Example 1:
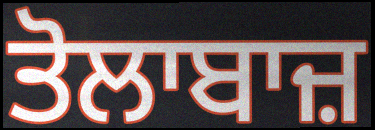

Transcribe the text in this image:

ਤੋਲਾਬਾਜ਼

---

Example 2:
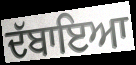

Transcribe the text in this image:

ਦੱਬਾਇਆ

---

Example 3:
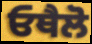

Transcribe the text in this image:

ਓਥੈਲੋ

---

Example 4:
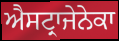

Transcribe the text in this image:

ਐਸਟ੍ਰਾਜੇਨੇਕਾ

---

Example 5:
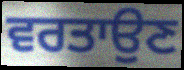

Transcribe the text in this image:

ਵਰਤਾਉਣ